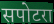
सपोटरा